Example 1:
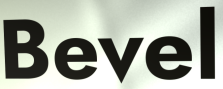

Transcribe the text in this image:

Bevel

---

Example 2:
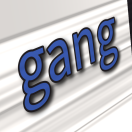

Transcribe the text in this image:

gang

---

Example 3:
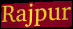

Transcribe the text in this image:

Rajpur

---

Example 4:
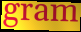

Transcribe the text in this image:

gram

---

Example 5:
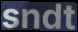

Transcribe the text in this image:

sndt